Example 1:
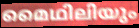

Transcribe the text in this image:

മൈഥിലിയും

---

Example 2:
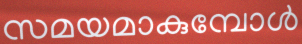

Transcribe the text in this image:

സമയമാകുമ്പോൾ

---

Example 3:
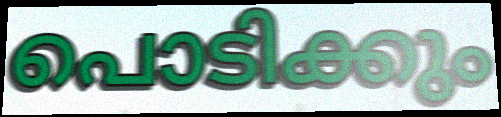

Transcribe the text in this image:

പൊടിക്കും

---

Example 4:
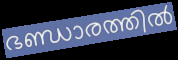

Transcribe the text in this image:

ഭണ്ഡാരത്തിൽ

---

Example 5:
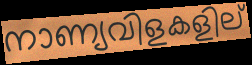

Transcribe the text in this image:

നാണ്യവിളകളില്